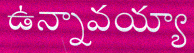
ఉన్నావయ్యా